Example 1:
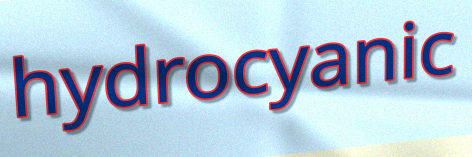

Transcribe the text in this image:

hydrocyanic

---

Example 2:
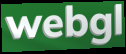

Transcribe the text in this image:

webgl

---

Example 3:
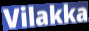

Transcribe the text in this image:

Vilakka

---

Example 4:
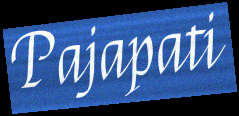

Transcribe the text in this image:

Pajapati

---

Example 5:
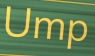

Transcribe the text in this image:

Ump